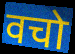
वचो